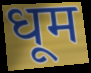
धूम